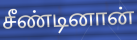
சீண்டினான்